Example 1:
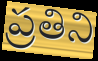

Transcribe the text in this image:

ప్రతిని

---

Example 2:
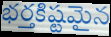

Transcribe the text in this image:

భర్తకిష్టమైన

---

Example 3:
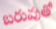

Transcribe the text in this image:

బరువుతో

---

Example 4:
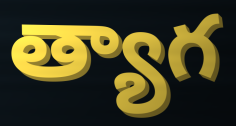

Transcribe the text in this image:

త్యాగ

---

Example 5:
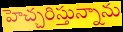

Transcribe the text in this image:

హెచ్చరిస్తున్నాను